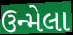
ઉન્મેલા